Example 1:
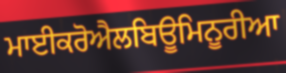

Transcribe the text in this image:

ਮਾਈਕਰੋਐਲਬਿਊਮਿਨੂਰੀਆ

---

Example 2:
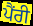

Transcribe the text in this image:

ਪੈਂਰੀ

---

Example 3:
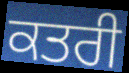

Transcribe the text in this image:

ਕਤਰੀ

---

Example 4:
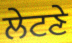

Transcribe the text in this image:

ਲੇਟਣੇ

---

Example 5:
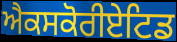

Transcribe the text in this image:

ਐਕਸਕੋਰੀਏਟਿਡ